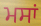
ਮਸਾਂ